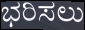
ಭರಿಸಲು